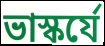
ভাস্কর্যে